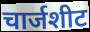
चार्जशीट